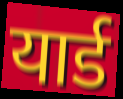
यार्ड